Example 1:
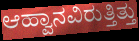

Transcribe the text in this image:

ಆಹ್ವಾನವಿರುತ್ತಿತ್ತು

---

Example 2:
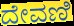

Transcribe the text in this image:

ದೇವಣಿ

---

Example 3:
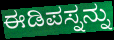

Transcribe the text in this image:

ಈಡಿಪಸ್ನನ್ನು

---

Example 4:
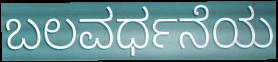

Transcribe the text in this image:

ಬಲವರ್ಧನೆಯ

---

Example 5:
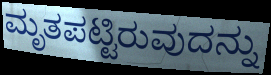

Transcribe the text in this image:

ಮೃತಪಟ್ಟಿರುವುದನ್ನು